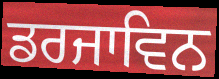
ਡਰਜਾਵਿਨ